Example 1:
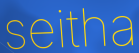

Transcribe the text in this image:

seitha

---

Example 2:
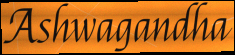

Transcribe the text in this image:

Ashwagandha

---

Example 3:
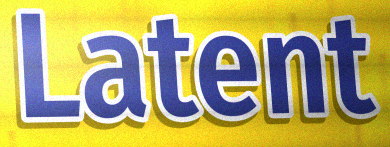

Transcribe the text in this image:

Latent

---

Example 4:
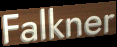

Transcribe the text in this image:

Falkner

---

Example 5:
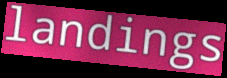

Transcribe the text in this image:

landings